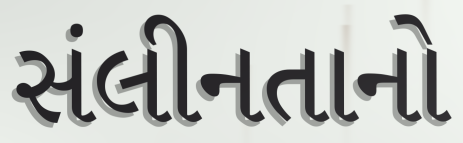
સંલીનતાનો